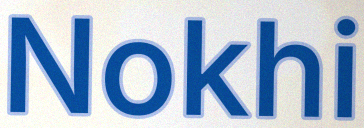
Nokhi